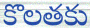
కొలతకు